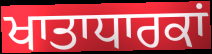
ਖਾਤਾਧਾਰਕਾਂ